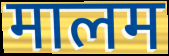
मालम